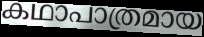
കഥാപാത്രമായ